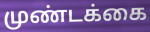
முண்டக்கை